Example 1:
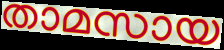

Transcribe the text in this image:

താമസായ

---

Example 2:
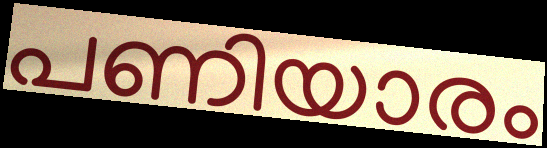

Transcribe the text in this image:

പണിയാരം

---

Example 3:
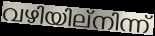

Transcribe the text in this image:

വഴിയില്നിന്ന്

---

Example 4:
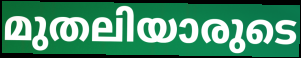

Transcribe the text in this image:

മുതലിയാരുടെ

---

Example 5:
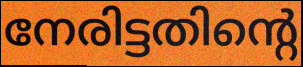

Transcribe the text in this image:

നേരിട്ടതിന്റെ